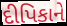
દીપિકાને